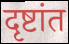
दृष्टांत